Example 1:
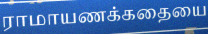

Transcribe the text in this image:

ராமாயணக்கதையை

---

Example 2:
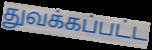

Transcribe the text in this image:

துவக்கப்பட்ட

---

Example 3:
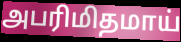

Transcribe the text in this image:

அபரிமிதமாய்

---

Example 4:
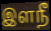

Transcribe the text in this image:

இளநீ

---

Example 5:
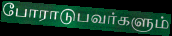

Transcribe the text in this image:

போராடுபவர்களும்